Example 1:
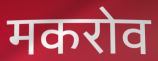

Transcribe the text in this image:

मकरोव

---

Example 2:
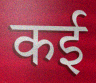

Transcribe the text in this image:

कई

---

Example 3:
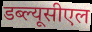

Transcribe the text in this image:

डब्ल्यूसीएल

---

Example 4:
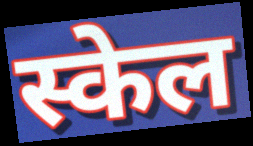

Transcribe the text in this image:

स्केल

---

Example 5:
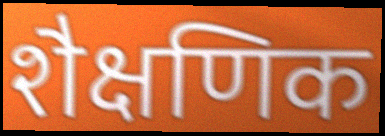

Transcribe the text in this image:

शैक्षणिक